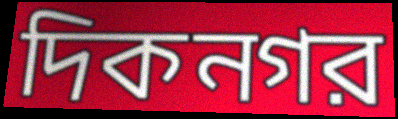
দিকনগর